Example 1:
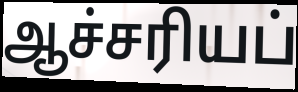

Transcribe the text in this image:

ஆச்சரியப்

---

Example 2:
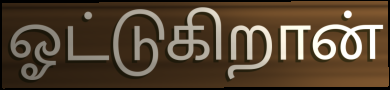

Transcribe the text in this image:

ஓட்டுகிறான்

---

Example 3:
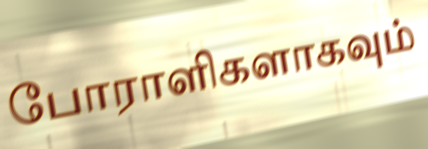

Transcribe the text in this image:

போராளிகளாகவும்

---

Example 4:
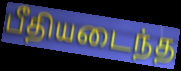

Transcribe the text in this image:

பீதியடைந்த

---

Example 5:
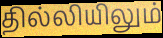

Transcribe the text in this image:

தில்லியிலும்